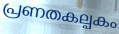
പ്രണതകല്പകം